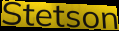
Stetson